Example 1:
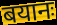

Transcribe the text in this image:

बयानः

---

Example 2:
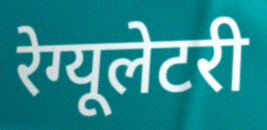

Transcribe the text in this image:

रेग्यूलेटरी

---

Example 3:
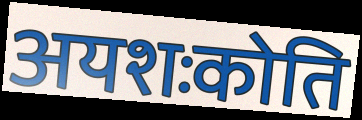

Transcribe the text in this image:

अयशःकोति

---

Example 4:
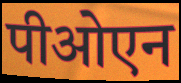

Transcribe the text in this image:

पीओएन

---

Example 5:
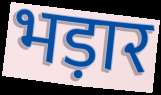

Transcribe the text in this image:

भड़ार